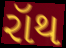
રૉથ